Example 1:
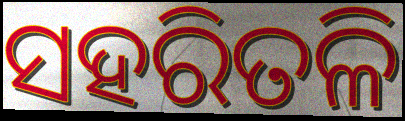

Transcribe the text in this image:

ସହରିତଳି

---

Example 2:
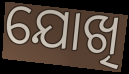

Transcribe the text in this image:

ଯୋଖି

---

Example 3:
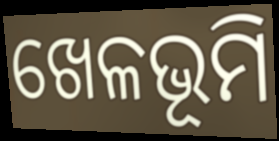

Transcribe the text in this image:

ଖେଳଭୂମି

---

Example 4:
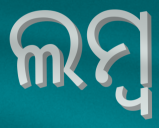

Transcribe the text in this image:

ଲମ୍ୱ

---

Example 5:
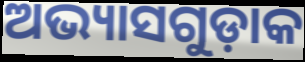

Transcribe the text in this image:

ଅଭ୍ୟାସଗୁଡ଼ାକ